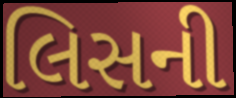
લિસની